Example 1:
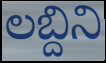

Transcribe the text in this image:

లబ్దిని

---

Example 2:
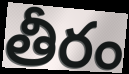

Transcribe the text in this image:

తీరం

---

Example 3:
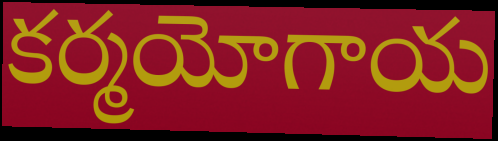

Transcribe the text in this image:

కర్మయోగాయ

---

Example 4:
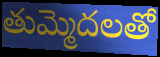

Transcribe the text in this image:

తుమ్మెదలతో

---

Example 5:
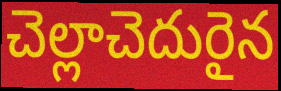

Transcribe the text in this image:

చెల్లాచెదురైన